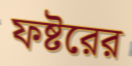
ফষ্টরের